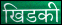
खिडकी